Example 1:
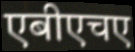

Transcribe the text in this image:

एबीएचए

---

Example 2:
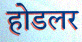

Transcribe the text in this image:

होडलर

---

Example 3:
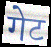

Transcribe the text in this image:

गेट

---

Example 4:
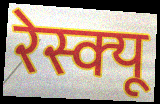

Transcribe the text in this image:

रेस्क्यू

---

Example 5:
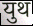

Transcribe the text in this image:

युथ